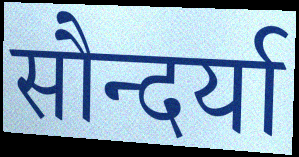
सौन्दर्या